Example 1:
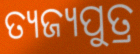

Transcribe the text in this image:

ତ୍ୟଜ୍ୟପୁତ୍ର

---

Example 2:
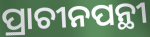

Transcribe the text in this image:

ପ୍ରାଚୀନପନ୍ଥୀ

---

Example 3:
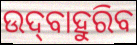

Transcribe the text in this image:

ଉଦ୍‌ବାହୁରିବ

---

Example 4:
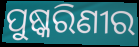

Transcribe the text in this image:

ପୁଷ୍କରିଣୀର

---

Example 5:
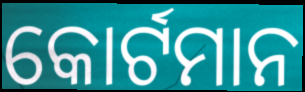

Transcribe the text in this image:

କୋର୍ଟମାନ